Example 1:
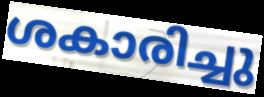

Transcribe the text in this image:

ശകാരിച്ചു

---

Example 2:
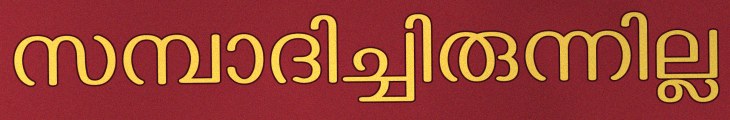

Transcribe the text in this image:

സമ്പാദിച്ചിരുന്നില്ല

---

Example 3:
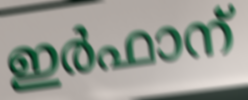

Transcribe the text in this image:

ഇർഫാന്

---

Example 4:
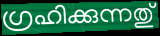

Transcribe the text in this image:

ഗ്രഹിക്കുന്നതു്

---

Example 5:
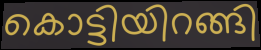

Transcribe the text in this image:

കൊട്ടിയിറങ്ങി